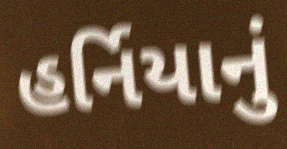
હર્નિયાનું